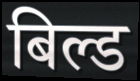
बिल्ड